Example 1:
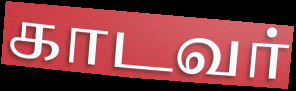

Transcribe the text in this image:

காடவர்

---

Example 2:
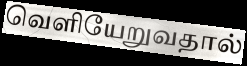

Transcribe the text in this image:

வெளியேறுவதால்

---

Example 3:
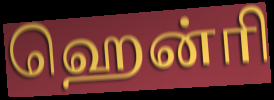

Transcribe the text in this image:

ஹென்ரி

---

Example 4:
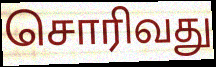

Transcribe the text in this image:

சொரிவது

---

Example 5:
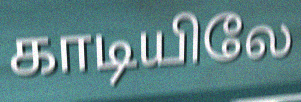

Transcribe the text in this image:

காடியிலே